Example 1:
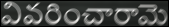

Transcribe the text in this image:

వివరించారామె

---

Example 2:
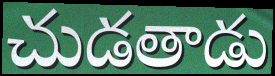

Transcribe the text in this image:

చుడతాడు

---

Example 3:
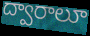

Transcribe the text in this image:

ద్వారాలూ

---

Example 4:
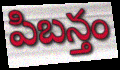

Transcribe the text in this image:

పిబన్తం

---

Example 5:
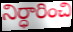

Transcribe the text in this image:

నిర్ధారించి